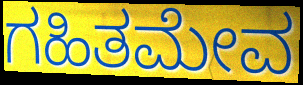
ಗಹಿತಮೇವ